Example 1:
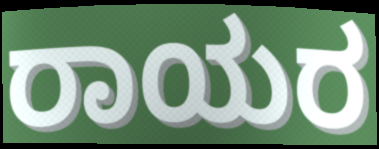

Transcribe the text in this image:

ರಾಯರ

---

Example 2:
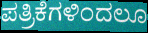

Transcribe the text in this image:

ಪತ್ರಿಕೆಗಳಿಂದಲೂ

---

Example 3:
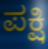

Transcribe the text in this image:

ಪಕ್ಷಿ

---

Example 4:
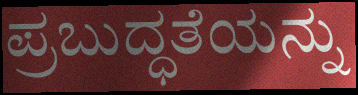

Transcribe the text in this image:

ಪ್ರಬುದ್ಧತೆಯನ್ನು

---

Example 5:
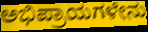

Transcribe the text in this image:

ಅಭಿಪ್ರಾಯಗಳೇನು